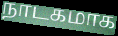
நாடகமாக